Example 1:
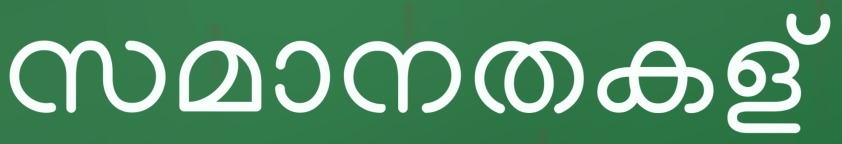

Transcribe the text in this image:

സമാനതകള്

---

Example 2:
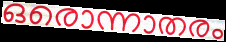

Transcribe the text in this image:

ഒരൊന്നാതരം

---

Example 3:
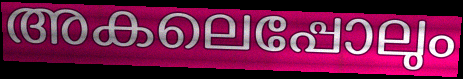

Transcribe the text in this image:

അകലെപ്പോലും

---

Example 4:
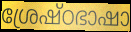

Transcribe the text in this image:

ശ്രേഷ്ഠഭാഷാ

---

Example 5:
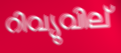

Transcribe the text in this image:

റിവ്യുവില്